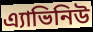
এ্যাভিনিউ